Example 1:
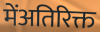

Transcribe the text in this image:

मेंअतिरिक्त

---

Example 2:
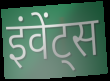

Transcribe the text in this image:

इंवेंट्स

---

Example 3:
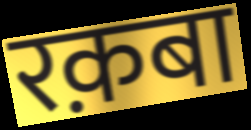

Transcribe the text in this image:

रक़बा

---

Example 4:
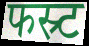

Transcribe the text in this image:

फस्र्ट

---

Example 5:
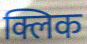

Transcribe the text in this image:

क्लिक